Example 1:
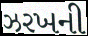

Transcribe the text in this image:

ઝરખની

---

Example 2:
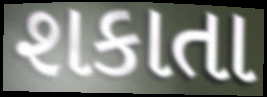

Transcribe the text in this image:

શકાતા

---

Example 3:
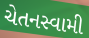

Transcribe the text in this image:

ચેતનસ્વામી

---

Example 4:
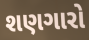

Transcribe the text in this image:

શણગારો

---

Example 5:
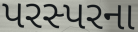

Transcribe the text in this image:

પરસ્પરના